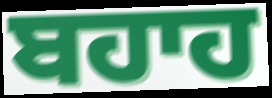
ਬਹਾਹ